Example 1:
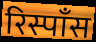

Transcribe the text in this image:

रिस्पॉंस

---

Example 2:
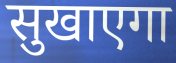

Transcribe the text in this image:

सुखाएगा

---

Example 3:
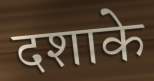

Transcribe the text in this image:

दशाके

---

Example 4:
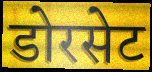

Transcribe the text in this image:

डोरसेट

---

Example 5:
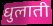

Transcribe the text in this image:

धुलाती